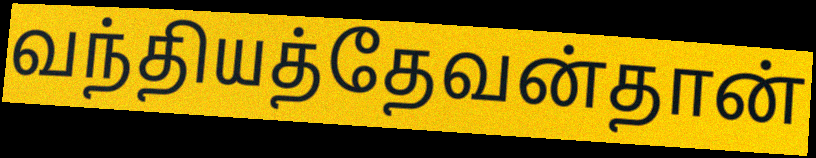
வந்தியத்தேவன்தான்